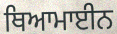
ਥਿਆਮਾਈਨ